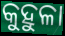
କୁହୁଳା